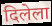
दिलेला